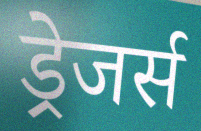
ड्रेजर्स